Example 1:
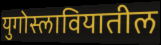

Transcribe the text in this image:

युगोस्लावियातील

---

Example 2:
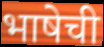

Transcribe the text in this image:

भाषेची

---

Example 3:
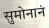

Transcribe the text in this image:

सुमोनानं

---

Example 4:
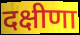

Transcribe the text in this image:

दक्षीणा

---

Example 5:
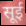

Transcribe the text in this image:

सूई